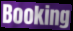
Booking